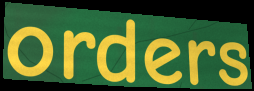
orders